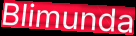
Blimunda